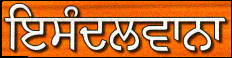
ਇਸੰਦਲਵਾਨਾ